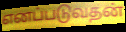
எனப்படுவதன்